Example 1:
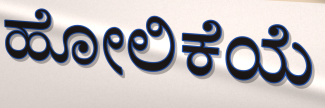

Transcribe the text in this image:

ಹೋಲಿಕೆಯೆ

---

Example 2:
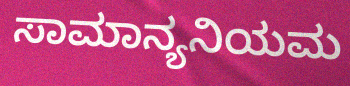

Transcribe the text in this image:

ಸಾಮಾನ್ಯನಿಯಮ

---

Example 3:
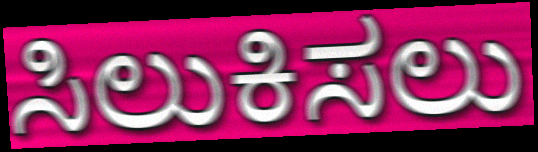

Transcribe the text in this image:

ಸಿಲುಕಿಸಲು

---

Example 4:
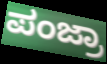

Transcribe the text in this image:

ಪಂಜ್ರಾ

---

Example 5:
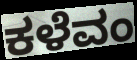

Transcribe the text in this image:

ಕಳೆವಂ